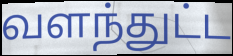
வளந்துட்ட